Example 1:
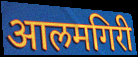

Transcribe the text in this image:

आलमगिरी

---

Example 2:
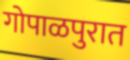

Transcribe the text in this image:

गोपाळपुरात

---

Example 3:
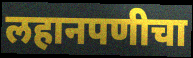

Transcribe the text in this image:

लहानपणीचा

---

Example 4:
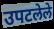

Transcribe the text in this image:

उपटलेले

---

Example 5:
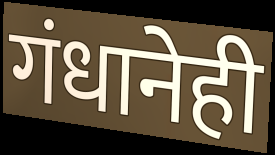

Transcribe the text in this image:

गंधानेही